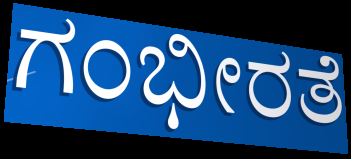
ಗಂಭೀರತೆ